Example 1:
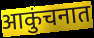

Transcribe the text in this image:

आकुंचनात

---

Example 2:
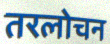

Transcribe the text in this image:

तरलोचन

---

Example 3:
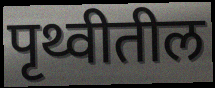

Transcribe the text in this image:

पृथ्वीतील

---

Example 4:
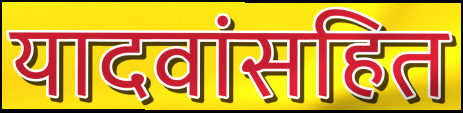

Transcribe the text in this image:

यादवांसहित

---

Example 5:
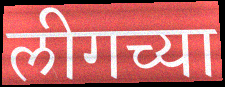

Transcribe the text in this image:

लीगच्या